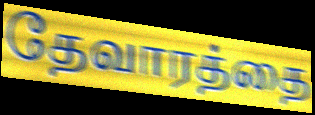
தேவாரத்தை